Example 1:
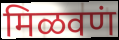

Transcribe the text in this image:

मिळवणं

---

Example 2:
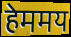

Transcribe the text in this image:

हेममय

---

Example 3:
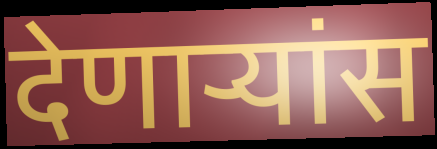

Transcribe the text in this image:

देणाऱ्यांस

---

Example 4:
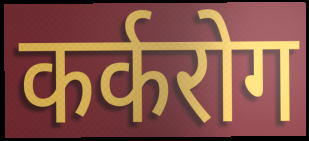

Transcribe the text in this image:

कर्करोग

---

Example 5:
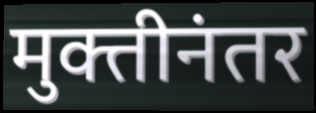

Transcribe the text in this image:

मुक्तीनंतर